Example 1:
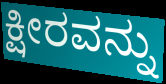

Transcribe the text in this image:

ಕ್ಷೀರವನ್ನು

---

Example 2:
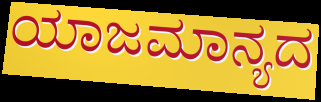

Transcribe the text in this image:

ಯಾಜಮಾನ್ಯದ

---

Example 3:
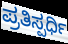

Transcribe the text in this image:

ಪ್ರತಿಸ್ಪರ್ಧಿ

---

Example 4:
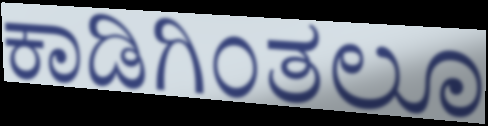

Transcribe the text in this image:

ಕಾಡಿಗಿಂತಲೂ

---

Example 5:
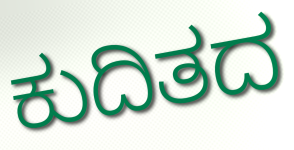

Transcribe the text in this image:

ಕುದಿತದ